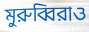
মুরুব্বিরাও